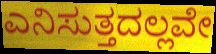
ಎನಿಸುತ್ತದಲ್ಲವೇ